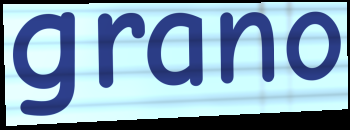
grano